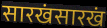
सारखंसारखं